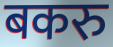
बकरु